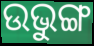
ଉଭୁଙ୍ଗ